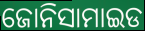
ଜୋନିସାମାଇଡ